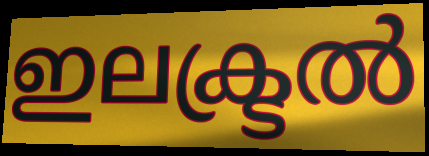
ഇലക്ട്രൽ